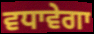
ਵਧਾਵੇਗਾ